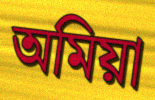
অমিয়া